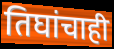
तिघांचाही